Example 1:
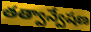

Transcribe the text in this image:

తత్వాన్వేషణ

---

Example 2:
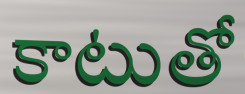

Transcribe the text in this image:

కాటుతో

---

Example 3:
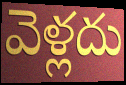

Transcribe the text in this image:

వెళ్లదు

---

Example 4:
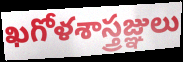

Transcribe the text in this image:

ఖగోళశాస్త్రజ్ఞులు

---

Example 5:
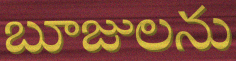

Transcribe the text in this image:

బూజులను